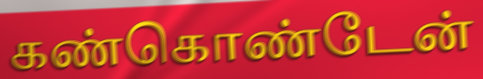
கண்கொண்டேன்